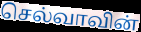
செல்வாவின்